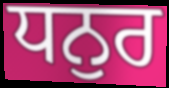
ਧਨੁਰ